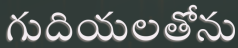
గుదియలతోను